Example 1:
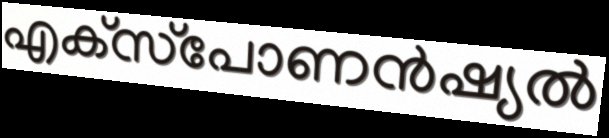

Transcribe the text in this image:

എക്‌സ്‌പോണൻഷ്യൽ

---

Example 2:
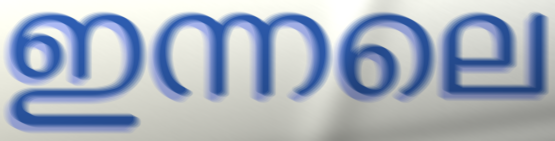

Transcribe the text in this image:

ഇന്നലെ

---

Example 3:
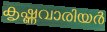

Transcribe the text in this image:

കൃഷ്ണവാരിയർ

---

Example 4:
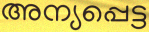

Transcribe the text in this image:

അന്യപ്പെട്ട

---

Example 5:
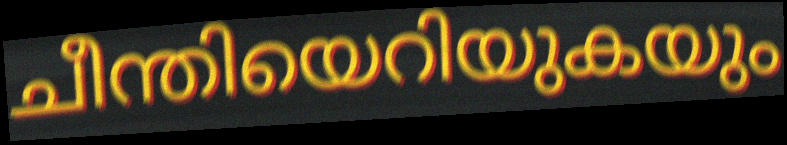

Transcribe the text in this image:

ചീന്തിയെറിയുകയും